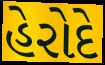
હેરોદે